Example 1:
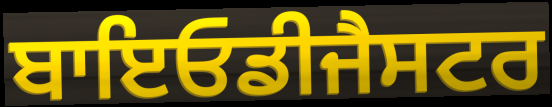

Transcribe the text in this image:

ਬਾਇਓਡੀਜੈਸਟਰ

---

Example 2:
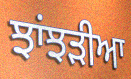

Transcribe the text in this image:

ਝਾਂਝੜੀਆ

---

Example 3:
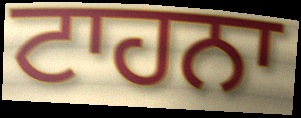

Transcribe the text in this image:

ਟਾਹਨਾ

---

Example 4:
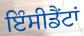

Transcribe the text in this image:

ਇੰਸੀਡੈਂਟਾਂ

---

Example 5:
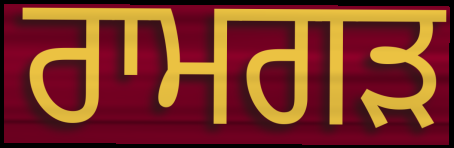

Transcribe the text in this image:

ਰਾਮਗੜ